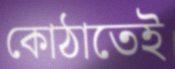
কোঠাতেই